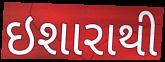
ઇશારાથી